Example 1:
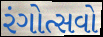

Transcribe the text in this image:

રંગોત્સવો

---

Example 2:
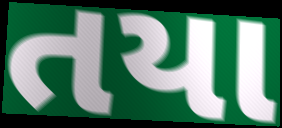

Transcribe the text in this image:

તયા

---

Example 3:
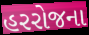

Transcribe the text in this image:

હરરોજના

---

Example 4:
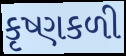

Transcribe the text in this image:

કૃષ્ણકળી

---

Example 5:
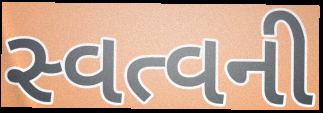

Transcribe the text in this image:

સ્વત્વની